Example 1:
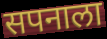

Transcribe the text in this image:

सपनाला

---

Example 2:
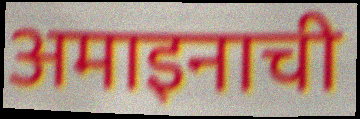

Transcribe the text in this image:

अमाइनाची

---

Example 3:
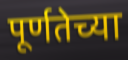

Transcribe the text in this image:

पूर्णतेच्या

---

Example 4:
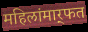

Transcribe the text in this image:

महिलांमार्फत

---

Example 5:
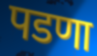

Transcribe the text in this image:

पडणा